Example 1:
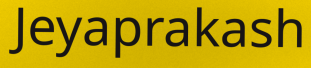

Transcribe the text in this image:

Jeyaprakash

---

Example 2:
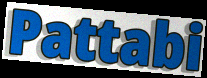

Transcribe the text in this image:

Pattabi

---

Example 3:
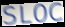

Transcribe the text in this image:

SLOC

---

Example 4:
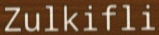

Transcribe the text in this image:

Zulkifli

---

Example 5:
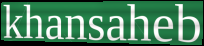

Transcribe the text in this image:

khansaheb